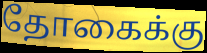
தோகைக்கு